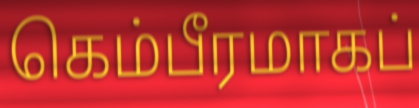
கெம்பீரமாகப்